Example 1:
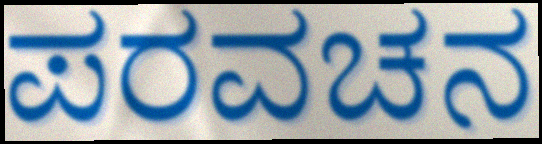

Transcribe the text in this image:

ಪರವಚನ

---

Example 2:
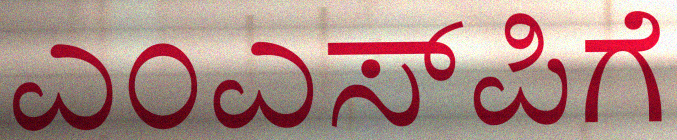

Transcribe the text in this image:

ಎಂಎಸ್‌ಪಿಗೆ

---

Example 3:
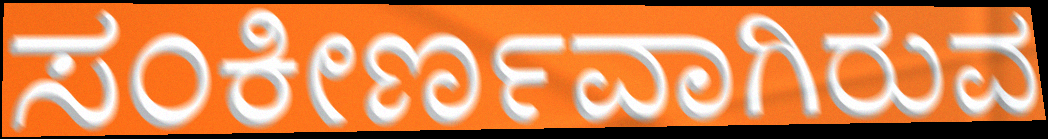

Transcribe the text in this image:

ಸಂಕೀರ್ಣವಾಗಿರುವ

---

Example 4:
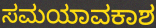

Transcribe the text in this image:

ಸಮಯಾವಕಾಶ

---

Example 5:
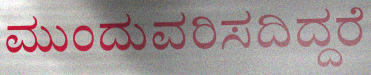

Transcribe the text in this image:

ಮುಂದುವರಿಸದಿದ್ದರೆ